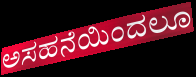
ಅಸಹನೆಯಿಂದಲೂ